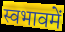
स्वभावमें